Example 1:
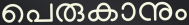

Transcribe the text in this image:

പെരുകാനും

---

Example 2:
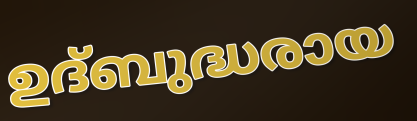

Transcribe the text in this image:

ഉദ്ബുദ്ധരായ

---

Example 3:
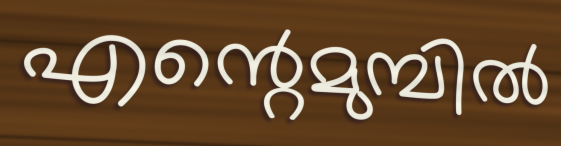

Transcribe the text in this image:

എന്റെമുമ്പിൽ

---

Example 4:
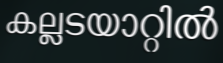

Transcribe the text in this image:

കല്ലടയാറ്റിൽ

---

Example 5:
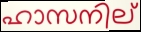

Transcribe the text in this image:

ഹാസനില്